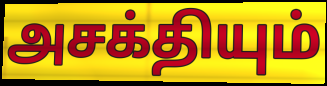
அசக்தியும்